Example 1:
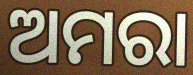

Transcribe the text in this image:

ଅମରା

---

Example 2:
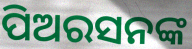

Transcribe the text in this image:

ପିଅରସନଙ୍କ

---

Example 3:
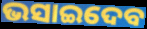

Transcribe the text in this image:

ଭସାଇଦେବ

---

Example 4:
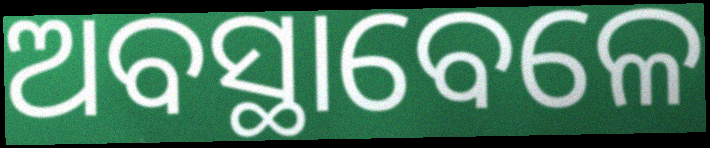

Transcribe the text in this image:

ଅବସ୍ଥାବେଳେ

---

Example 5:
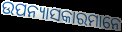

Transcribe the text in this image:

ଉପନ୍ୟାସକାରମାନେ